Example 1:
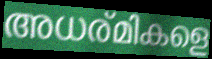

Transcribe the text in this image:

അധര്മികളെ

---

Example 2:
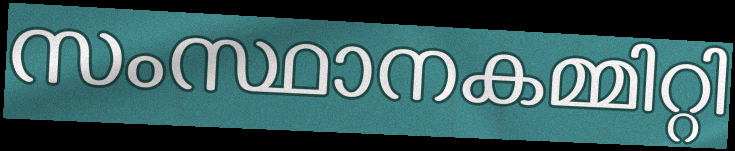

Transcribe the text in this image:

സംസ്ഥാനകമ്മിറ്റി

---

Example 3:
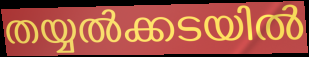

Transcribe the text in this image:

തയ്യൽക്കടയിൽ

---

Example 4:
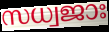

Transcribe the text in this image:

സധ്വജാഃ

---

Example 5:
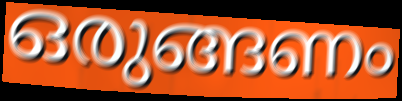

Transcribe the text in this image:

ഒരുങ്ങണം